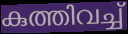
കുത്തിവച്ച്